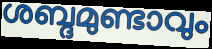
ശബ്ദമുണ്ടാവും